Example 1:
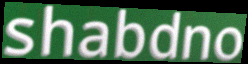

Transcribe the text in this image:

shabdno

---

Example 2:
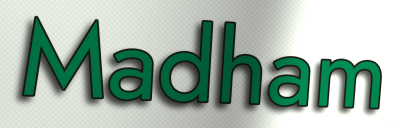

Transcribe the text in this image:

Madham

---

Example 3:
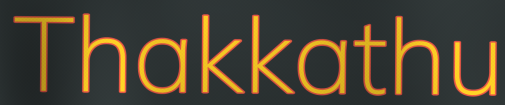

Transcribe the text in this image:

Thakkathu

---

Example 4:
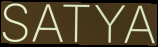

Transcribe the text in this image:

SATYA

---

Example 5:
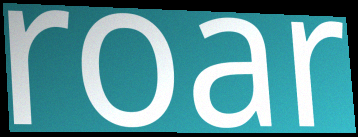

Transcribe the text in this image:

roar